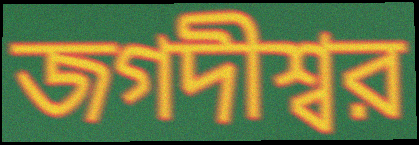
জগদীশ্বর